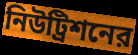
নিউট্রিশনের